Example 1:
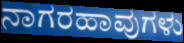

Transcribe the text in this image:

ನಾಗರಹಾವುಗಳು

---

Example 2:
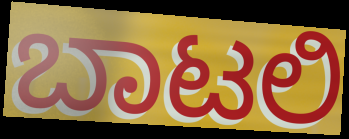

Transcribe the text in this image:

ಬಾಟಲಿ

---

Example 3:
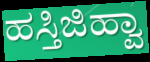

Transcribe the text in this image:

ಹಸ್ತಿಜಿಹ್ವಾ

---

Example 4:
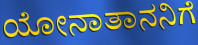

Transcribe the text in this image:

ಯೋನಾತಾನನಿಗೆ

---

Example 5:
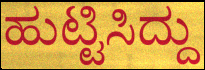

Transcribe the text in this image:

ಹುಟ್ಟಿಸಿದ್ದು